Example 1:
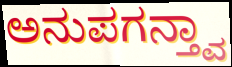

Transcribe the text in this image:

ಅನುಪಗನ್ತ್ವಾ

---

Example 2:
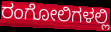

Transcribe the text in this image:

ರಂಗೋಲಿಗಳಲ್ಲಿ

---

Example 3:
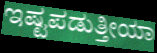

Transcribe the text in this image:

ಇಷ್ಟಪಡುತ್ತೀಯಾ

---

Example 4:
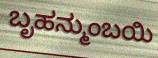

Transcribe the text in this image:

ಬೃಹನ್ಮುಂಬಯಿ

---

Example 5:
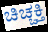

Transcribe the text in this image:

ಚಿಚ್ಚಕ್ತಿ